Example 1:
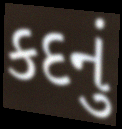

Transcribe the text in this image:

કદનું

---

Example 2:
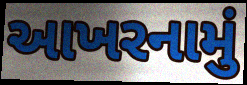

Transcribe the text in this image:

આખરનામું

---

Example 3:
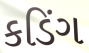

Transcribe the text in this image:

કડિંગ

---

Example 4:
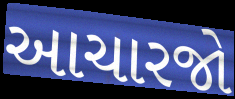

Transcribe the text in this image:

આચારજો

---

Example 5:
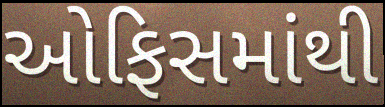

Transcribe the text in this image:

ઓફિસમાંથી